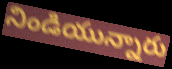
నిండియున్నారు